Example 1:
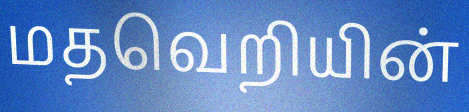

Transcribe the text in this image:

மதவெறியின்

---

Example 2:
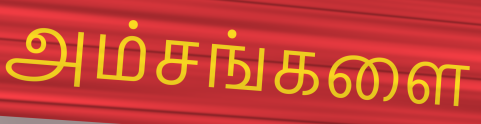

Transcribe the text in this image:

அம்சங்களை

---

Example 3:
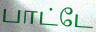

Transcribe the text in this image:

பாட்டே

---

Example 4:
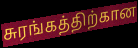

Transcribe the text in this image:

சுரங்கத்திற்கான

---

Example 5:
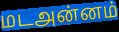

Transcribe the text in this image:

மடஅன்னம்